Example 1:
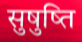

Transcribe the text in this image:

सुषुष्ति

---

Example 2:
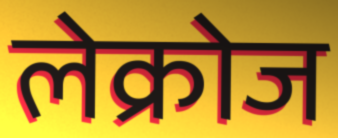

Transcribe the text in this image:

लेक्रोज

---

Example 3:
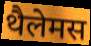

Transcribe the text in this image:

थैलेमस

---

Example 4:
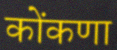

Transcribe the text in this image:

कोंकणा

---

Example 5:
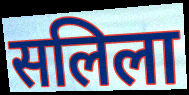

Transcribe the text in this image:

सलिला